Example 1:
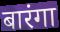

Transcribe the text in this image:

बारंगा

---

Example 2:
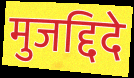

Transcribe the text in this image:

मुजद्दिदे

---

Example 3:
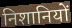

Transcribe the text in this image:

निशानियों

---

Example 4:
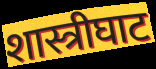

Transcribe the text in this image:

शास्त्रीघाट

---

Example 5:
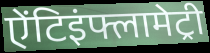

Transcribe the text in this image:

ऐंटिइंफ्लामेट्री